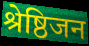
श्रेष्ठिजन